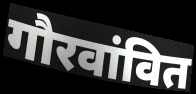
गौरवांवित